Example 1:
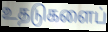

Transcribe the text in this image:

உதடுகளைப்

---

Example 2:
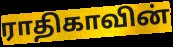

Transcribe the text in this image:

ராதிகாவின்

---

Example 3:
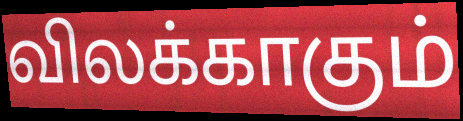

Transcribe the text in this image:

விலக்காகும்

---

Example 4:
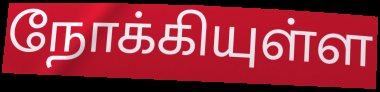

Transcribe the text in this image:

நோக்கியுள்ள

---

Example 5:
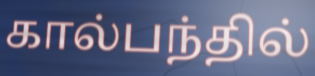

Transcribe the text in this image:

கால்பந்தில்